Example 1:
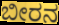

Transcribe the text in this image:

ಬೀರನ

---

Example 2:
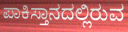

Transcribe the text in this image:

ಪಾಕಿಸ್ತಾನದಲ್ಲಿರುವ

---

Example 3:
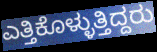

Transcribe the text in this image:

ಎತ್ತಿಕೊಳ್ಳುತ್ತಿದ್ದರು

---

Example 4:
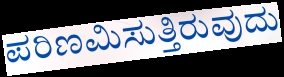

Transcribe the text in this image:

ಪರಿಣಮಿಸುತ್ತಿರುವುದು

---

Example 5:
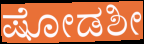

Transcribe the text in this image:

ಷೋಡಶೀ